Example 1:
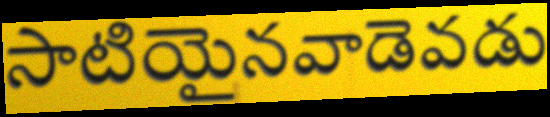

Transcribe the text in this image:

సాటియైనవాడెవడు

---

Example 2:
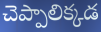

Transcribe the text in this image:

చెప్పాలిక్కడ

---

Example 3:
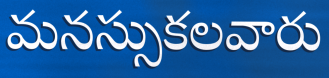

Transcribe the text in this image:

మనస్సుకలవారు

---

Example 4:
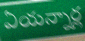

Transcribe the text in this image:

ఏయన్నార్ల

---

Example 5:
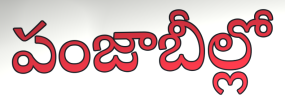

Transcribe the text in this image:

పంజాబీల్లో